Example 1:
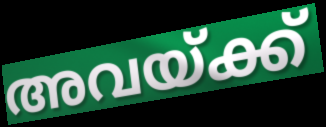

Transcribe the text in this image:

അവയ്ക്ക്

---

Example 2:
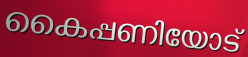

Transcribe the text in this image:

കൈപ്പണിയോട്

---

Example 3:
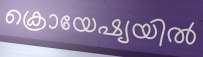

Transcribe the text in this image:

ക്രൊയേഷ്യയിൽ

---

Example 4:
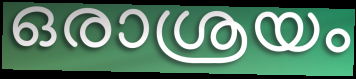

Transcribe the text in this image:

ഒരാശ്രയം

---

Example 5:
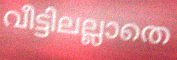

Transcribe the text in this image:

വീട്ടിലല്ലാതെ